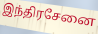
இந்திரசேனை